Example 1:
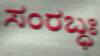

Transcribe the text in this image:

ಸಂರಬ್ಧಃ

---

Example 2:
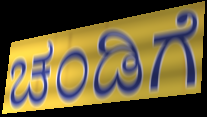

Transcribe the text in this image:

ಚಂಡಿಗೆ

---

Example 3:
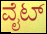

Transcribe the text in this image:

ವೈಟ್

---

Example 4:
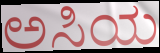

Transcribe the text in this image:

ಅಸಿಯ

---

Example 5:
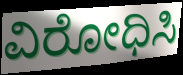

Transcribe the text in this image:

ವಿರೋಧಿಸಿ